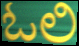
ಓಲಿ